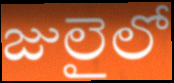
జులైలో